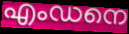
എംഡനെ